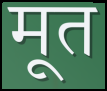
मूत